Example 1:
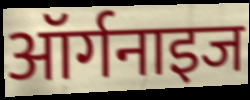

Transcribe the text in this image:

ऑर्गनाइज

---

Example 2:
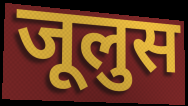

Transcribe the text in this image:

जूलुस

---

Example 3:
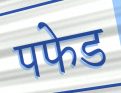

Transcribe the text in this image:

पफेड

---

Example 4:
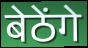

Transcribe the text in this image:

बेठेंगे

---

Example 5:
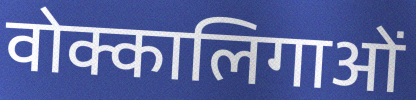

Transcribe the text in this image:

वोक्कालिगाओं